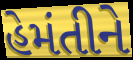
હેમંતીને